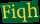
Fiqh